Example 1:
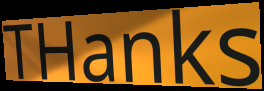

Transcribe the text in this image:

THanks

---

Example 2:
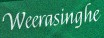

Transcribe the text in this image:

Weerasinghe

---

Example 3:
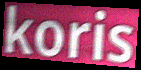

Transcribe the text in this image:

koris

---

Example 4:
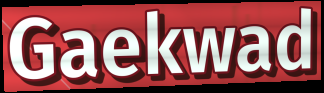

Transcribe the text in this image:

Gaekwad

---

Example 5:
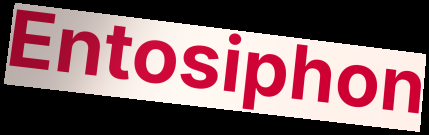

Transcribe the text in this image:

Entosiphon